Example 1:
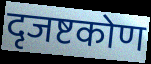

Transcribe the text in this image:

दृजष्टकोण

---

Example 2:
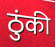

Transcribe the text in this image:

ठुंकी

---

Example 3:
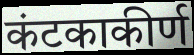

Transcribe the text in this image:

कंटकाकीर्ण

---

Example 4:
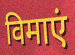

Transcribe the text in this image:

विमाएं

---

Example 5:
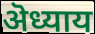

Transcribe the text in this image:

ऄध्याय